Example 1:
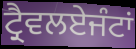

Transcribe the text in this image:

ਟ੍ਰੈਵਲਏਜੰਟਾਂ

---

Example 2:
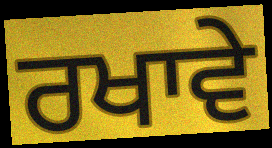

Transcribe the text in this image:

ਰਖਾਵੇ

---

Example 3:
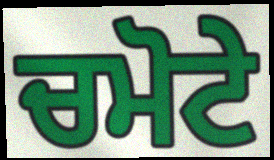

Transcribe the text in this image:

ਚਮੋਟੇ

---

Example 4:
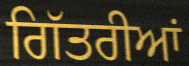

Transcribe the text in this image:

ਗਿੱਤਰੀਆਂ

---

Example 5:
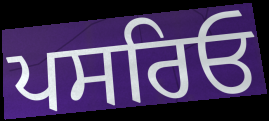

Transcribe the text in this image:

ਪਸਰਿਓ